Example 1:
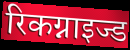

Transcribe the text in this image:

रिकग्नाइज्ड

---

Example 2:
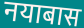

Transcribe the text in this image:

नयाबास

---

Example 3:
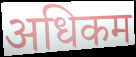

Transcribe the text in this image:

अधिकम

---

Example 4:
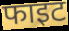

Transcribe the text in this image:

फाइट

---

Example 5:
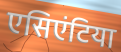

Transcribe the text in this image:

एसिएंटिया